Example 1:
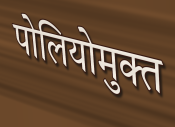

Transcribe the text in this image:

पोलियोमुक्त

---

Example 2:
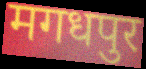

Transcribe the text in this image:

मगधपुर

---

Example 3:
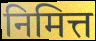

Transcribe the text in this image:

निमित्त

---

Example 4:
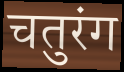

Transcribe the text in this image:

चतुरंग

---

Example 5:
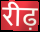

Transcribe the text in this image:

रीढ़